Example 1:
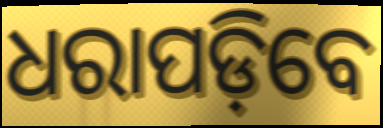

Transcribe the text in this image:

ଧରାପଡ଼ିବେ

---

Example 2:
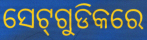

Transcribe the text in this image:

ସେଟ୍‌ଗୁଡିକରେ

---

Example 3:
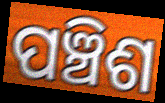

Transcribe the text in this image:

ପଞ୍ଚିଶ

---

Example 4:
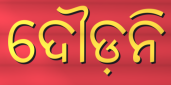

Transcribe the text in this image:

ଦୌଡ଼ନି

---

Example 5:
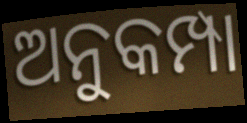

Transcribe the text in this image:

ଅନୁକମ୍ପା